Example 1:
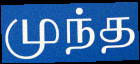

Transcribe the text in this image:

முந்த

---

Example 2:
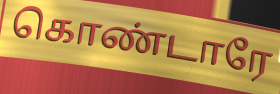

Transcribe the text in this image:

கொண்டாரே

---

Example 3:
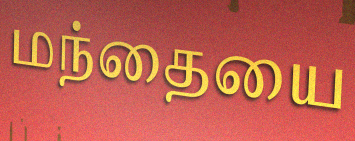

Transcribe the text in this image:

மந்தையை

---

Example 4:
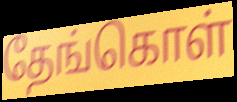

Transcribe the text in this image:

தேங்கொள்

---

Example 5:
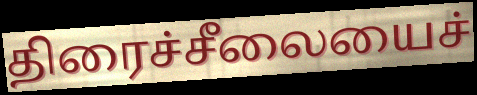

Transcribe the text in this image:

திரைச்சீலையைச்